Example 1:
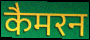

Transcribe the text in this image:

कैमरन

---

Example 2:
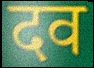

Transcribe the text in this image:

दव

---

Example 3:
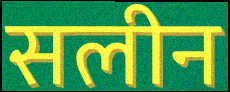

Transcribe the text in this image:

सलीन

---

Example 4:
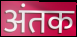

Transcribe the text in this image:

अंतक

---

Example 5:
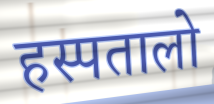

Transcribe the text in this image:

हस्पतालो